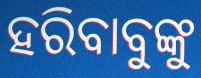
ହରିବାବୁଙ୍କୁ